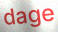
dage